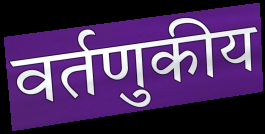
वर्तणुकीय